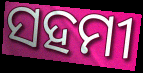
ସହମୀ